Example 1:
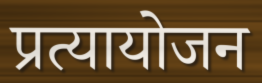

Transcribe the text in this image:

प्रत्यायोजन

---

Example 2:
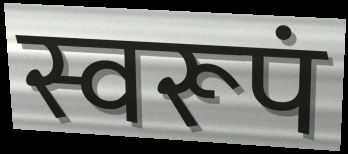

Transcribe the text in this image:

स्वरूपं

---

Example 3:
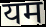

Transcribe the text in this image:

यम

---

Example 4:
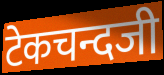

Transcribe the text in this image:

टेकचन्दजी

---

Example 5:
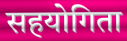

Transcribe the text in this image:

सहयोगिता